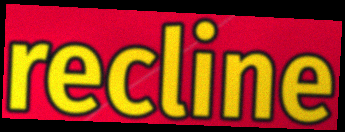
recline